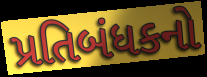
પ્રતિબંધકનો